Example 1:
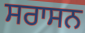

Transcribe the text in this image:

ਸਰਾਸਨ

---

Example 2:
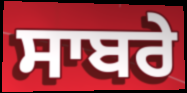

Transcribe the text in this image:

ਸਾਬਰੇ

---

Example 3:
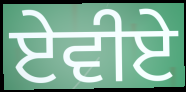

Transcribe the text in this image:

ਏਵੀਏ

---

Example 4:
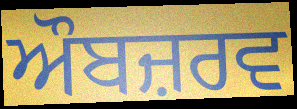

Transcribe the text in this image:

ਔਬਜ਼ਰਵ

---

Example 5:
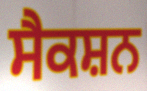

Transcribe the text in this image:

ਸੈਕਸ਼ਨ